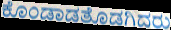
ಕೊಂಡಾಡತೊಡಗಿದರು